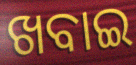
ଖବାଇ